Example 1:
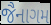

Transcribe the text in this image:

જૈનાગમ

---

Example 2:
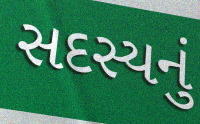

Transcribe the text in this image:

સદસ્યનું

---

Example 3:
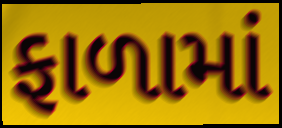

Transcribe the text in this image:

ફાળામાં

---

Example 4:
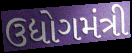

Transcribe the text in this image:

ઉદ્યોગમંત્રી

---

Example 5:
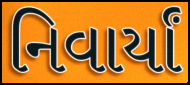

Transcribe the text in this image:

નિવાર્યાં